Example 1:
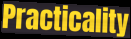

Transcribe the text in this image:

Practicality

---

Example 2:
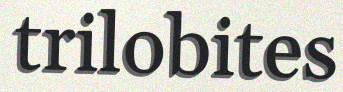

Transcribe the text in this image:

trilobites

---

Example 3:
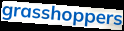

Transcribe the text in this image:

grasshoppers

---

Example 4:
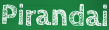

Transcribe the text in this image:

Pirandai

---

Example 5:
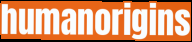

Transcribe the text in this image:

humanorigins